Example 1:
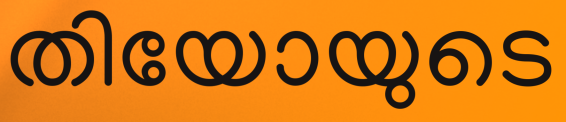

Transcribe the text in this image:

തിയോയുടെ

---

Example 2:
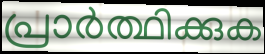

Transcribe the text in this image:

പ്രാർത്ഥിക്കുക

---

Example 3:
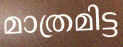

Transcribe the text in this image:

മാത്രമിട്ട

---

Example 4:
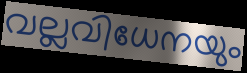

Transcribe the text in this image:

വല്ലവിധേനയും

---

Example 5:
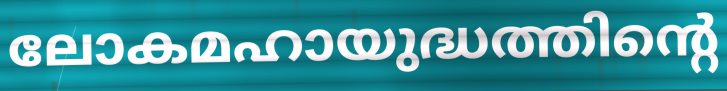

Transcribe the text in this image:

ലോകമഹായുദ്ധത്തിന്റെ